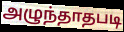
அழுந்தாதபடி